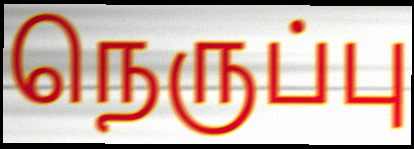
நெருப்பு